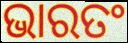
ଭାରତଂ